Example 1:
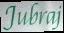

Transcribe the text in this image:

Jubraj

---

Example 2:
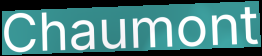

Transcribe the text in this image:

Chaumont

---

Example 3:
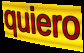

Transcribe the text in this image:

quiero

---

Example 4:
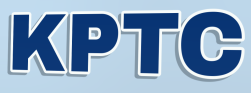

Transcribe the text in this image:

KPTC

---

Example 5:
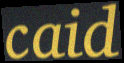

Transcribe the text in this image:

caid